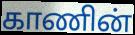
காணின்